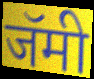
जॅमी